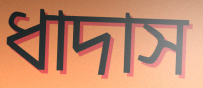
ধাদাস